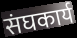
संघकार्य